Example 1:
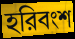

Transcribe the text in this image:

হরিবংশ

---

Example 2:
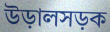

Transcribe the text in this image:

উড়ালসড়ক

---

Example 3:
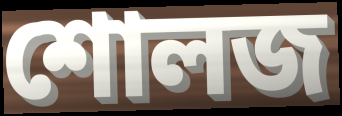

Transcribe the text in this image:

শোলজ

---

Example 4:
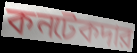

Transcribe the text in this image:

কনটেকদার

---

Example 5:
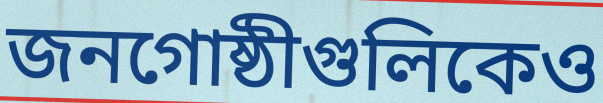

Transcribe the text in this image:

জনগোষ্ঠীগুলিকেও